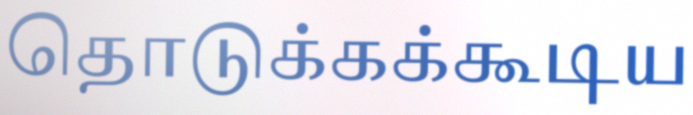
தொடுக்கக்கூடிய